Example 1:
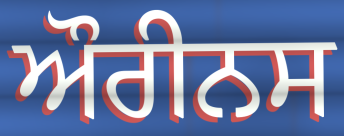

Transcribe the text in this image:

ਔਰੀਨਸ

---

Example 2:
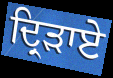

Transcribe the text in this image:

ਦ੍ਰਿੜਾਏ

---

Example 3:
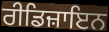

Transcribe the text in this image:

ਰੀਡਿਜ਼ਾਇਨ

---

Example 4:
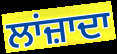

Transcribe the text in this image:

ਲਾਂਜ਼ਾਦਾ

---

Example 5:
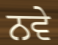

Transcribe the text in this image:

ਨਵੇ